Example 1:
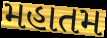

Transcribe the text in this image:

મહાતમ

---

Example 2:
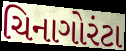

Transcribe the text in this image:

ચિનાગોરંટા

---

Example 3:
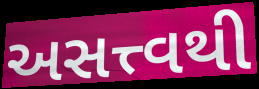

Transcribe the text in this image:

અસત્ત્વથી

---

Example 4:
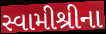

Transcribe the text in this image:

સ્વામીશ્રીના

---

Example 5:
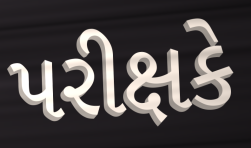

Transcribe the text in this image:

પરીક્ષકે